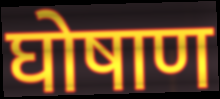
घोषाण